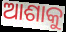
ଆଶାକୁ